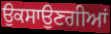
ਉਕਸਾਉਣਗੀਆਂ